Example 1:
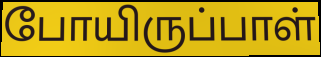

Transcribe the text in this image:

போயிருப்பாள்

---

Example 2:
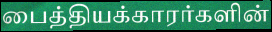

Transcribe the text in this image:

பைத்தியக்காரர்களின்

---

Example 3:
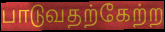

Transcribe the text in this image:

பாடுவதற்கேற்ற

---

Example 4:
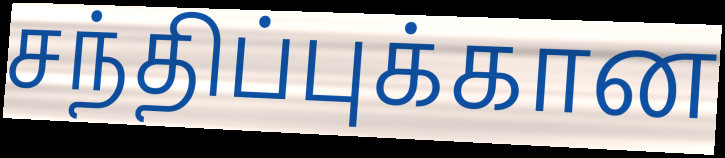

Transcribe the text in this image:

சந்திப்புக்கான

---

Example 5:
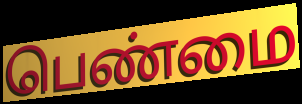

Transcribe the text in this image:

பெண்மை